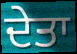
ਦੇਤਾ